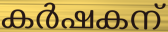
കർഷകന്